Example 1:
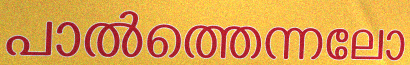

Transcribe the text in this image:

പാൽത്തെന്നലോ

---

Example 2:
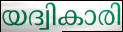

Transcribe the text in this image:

യദ്വികാരി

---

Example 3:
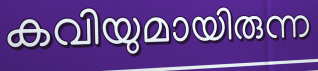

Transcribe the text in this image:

കവിയുമായിരുന്ന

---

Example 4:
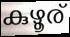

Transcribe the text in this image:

കുഴൂര്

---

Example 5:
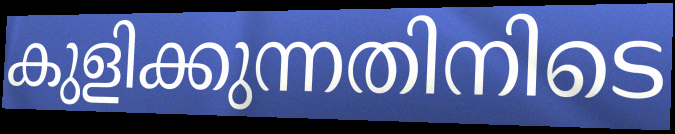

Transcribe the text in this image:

കുളിക്കുന്നതിനിടെ